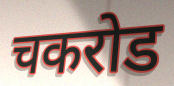
चकरोड